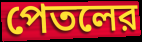
পেতলের